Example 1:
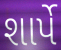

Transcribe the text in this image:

શાર્પે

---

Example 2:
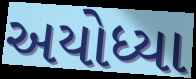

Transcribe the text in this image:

અયોધ્યા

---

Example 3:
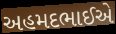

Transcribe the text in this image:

અહમદભાઈએ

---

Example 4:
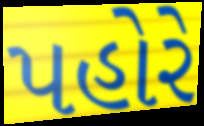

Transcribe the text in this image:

પહોરે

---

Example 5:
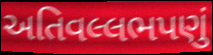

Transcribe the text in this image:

અતિવલ્લભપણું